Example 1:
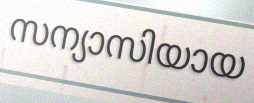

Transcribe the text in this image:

സന്യാസിയായ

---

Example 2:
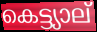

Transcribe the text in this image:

കെട്ട്യാല്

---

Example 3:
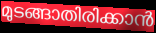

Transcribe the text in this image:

മുടങ്ങാതിരിക്കാൻ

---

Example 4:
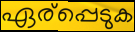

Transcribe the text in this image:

ഏര്പ്പെടുക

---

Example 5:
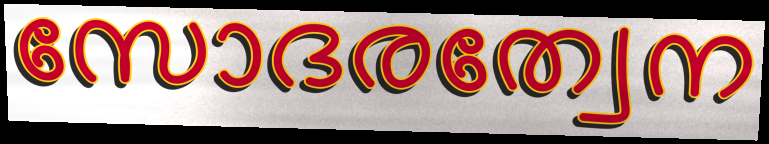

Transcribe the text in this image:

സോദരത്വേന